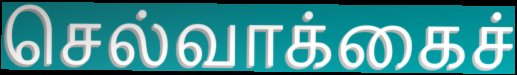
செல்வாக்கைச்